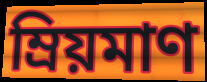
ম্রিয়মাণ